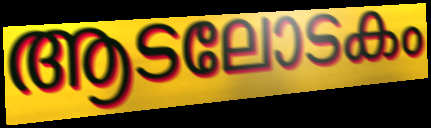
ആടലോടകം